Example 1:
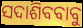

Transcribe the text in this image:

ସଦାଶିବବାବୁ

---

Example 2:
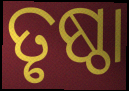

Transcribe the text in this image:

ତୃଷ୍ଠା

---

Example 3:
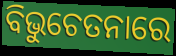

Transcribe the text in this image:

ବିଭୁଚେତନାରେ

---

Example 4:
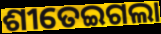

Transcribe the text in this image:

ଶୀତେଇଗଲା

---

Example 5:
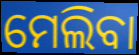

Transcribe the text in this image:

ମେଲିବା